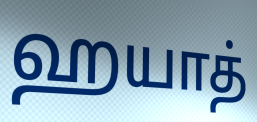
ஹயாத்